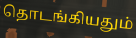
தொடங்கியதும்